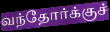
வந்தோர்க்குச்